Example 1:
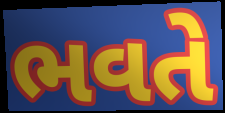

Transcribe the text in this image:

ભવતે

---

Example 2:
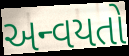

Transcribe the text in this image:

અન્વયતો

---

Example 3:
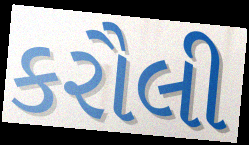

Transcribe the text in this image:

કરૌલી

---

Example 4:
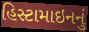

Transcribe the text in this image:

હિસ્ટામાઇનનું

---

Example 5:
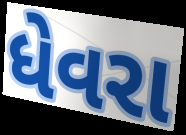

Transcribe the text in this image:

ધેવરા